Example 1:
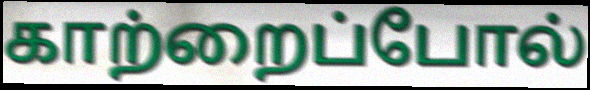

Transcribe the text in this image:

காற்றைப்போல்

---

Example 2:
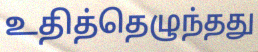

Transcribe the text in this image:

உதித்தெழுந்தது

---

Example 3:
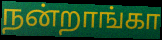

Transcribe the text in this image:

நன்றாங்கா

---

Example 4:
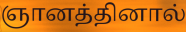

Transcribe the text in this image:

ஞானத்தினால்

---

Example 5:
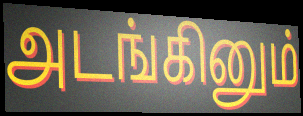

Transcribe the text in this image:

அடங்கினும்